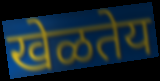
खेळतेय